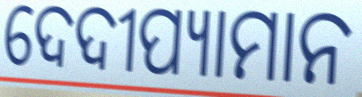
ଦେଦୀପ୍ୟାମାନ